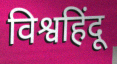
विश्वहिंदू